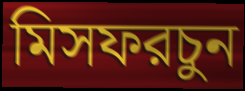
মিসফরচুন